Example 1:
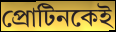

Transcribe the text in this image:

প্রোটিনকেই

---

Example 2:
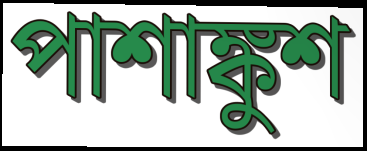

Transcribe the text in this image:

পাশাঙ্কুশ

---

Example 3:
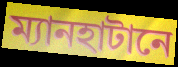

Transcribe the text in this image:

ম্যানহাটানে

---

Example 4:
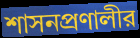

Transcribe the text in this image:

শাসনপ্রণালীর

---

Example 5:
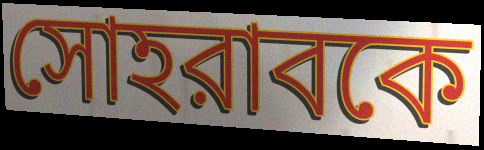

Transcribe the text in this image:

সোহরাবকে